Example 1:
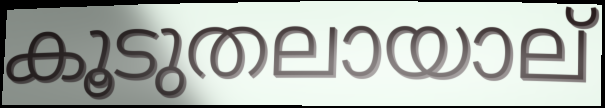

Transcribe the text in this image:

കൂടുതലായാല്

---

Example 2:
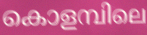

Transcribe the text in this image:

കൊളമ്പിലെ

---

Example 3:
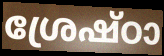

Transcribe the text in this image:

ശ്രേഷ്ഠാ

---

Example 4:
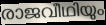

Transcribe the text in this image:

രാജവീഥിയും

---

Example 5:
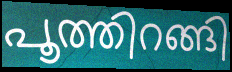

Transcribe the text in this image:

പൂത്തിറങ്ങി